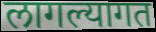
लागल्यागत